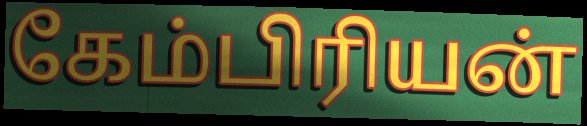
கேம்பிரியன்